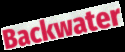
Backwater